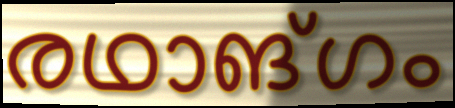
രഥാങ്ഗം